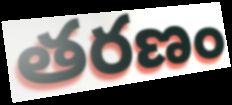
తరణం